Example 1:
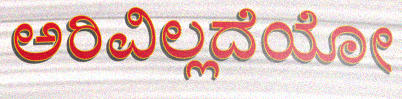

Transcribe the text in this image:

ಅರಿವಿಲ್ಲದೆಯೋ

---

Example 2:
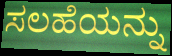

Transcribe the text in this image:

ಸಲಹೆಯನ್ನು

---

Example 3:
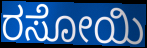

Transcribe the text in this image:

ರಸೋಯಿ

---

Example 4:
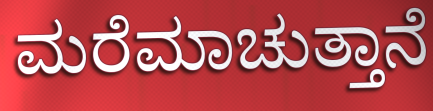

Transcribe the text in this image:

ಮರೆಮಾಚುತ್ತಾನೆ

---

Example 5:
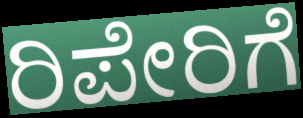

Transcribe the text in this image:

ರಿಪೇರಿಗೆ